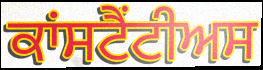
ਕਾਂਸਟੈਂਟੀਅਸ